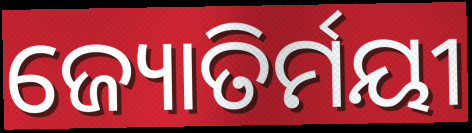
ଜ୍ୟୋତିର୍ମୟୀ